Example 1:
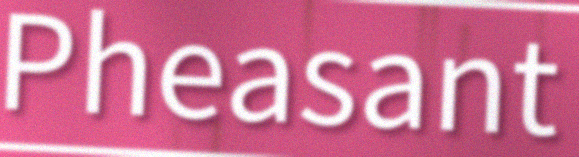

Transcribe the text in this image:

Pheasant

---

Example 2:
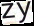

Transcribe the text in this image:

zy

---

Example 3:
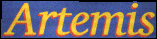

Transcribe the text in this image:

Artemis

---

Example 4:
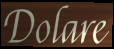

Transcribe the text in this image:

Dolare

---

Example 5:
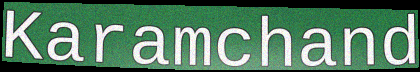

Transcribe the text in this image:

Karamchand